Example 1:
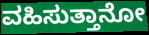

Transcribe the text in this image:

ವಹಿಸುತ್ತಾನೋ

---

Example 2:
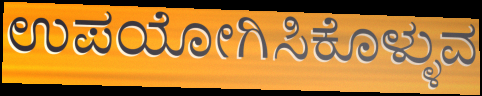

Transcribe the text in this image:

ಉಪಯೋಗಿಸಿಕೊಳ್ಳುವ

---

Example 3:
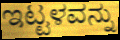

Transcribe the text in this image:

ಇಟ್ಟಳವನ್ನು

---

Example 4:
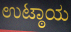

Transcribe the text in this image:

ಉಟ್ಠಾಯ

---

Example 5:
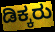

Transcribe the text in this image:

ಡಿಕ್ಕರು